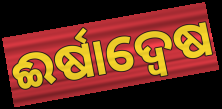
ଈର୍ଷାଦ୍ଵେଷ